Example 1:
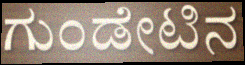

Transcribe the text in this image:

ಗುಂಡೇಟಿನ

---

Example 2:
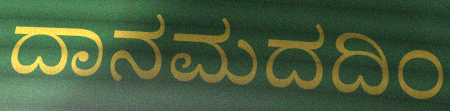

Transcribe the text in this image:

ದಾನಮದದಿಂ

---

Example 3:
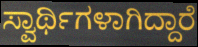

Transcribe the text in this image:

ಸ್ವಾರ್ಥಿಗಳಾಗಿದ್ದಾರೆ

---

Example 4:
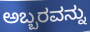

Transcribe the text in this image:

ಅಬ್ಬರವನ್ನು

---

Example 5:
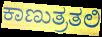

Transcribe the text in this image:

ಕಾಣುತ್ರತಲಿ